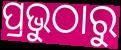
ପ୍ରଭୁଠାରୁ